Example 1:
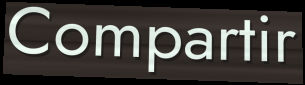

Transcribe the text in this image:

Compartir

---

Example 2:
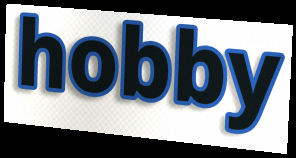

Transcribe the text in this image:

hobby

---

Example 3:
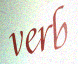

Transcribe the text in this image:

verb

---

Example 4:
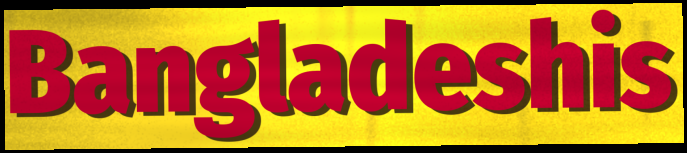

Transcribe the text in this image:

Bangladeshis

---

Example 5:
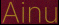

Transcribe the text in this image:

Ainu